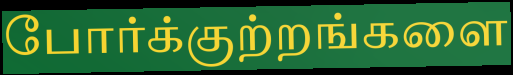
போர்க்குற்றங்களை